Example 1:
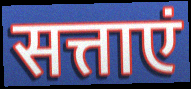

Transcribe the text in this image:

सत्ताएं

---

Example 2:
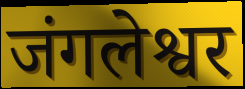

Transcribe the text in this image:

जंगलेश्वर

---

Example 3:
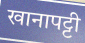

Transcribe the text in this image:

खानापट्टी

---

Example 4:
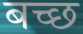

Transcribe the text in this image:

बच्छ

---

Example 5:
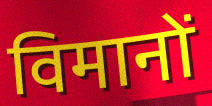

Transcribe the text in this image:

विमानों